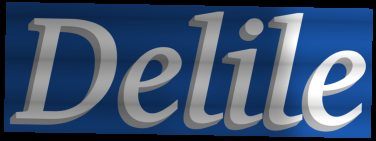
Delile